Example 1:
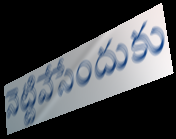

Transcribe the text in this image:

నెట్టివేసేందుకు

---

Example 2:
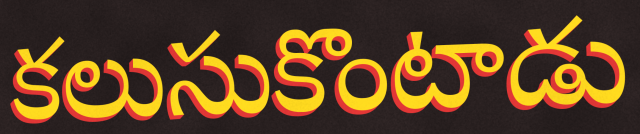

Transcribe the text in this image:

కలుసుకొంటాడు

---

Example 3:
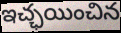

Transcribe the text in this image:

ఇచ్ఛయించిన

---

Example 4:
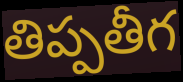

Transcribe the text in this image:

తిప్పతీగ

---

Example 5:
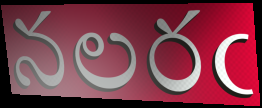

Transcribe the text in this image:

నలరఁ